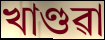
খাণ্ডৱা